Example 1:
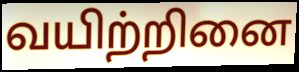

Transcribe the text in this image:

வயிற்றினை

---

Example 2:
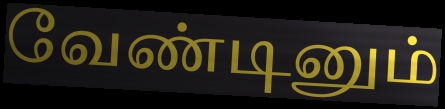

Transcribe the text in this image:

வேண்டினும்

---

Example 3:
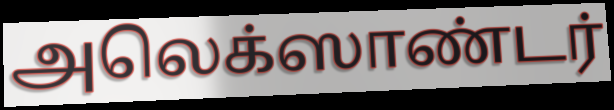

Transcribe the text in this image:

அலெக்ஸாண்டர்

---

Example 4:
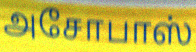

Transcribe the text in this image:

அசோபாஸ்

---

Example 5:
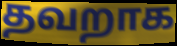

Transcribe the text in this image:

தவறாக